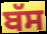
ਬੱਸ